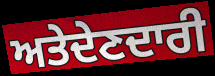
ਅਤੇਦੇਣਦਾਰੀ